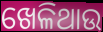
ଖେଳିଥାଉ